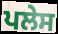
ਪਲੇਸ